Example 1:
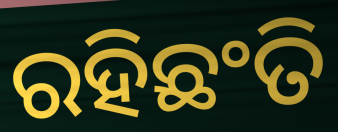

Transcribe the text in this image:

ରହିଛଂତି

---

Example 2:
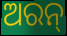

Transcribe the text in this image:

ଅରନ୍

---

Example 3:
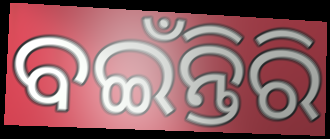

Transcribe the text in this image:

ବଇଁନ୍ତିରି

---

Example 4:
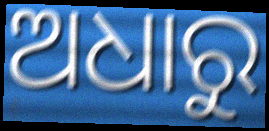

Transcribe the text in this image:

ଅଧାରୁ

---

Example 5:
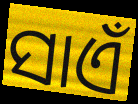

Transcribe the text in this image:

ସାଏଁ